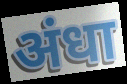
अंधा